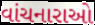
વાંચનારાઓ